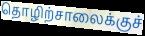
தொழிற்சாலைக்குச்